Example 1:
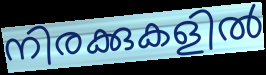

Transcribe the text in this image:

നിരക്കുകളിൽ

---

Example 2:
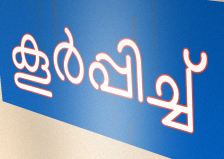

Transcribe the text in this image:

കൂർപ്പിച്ച്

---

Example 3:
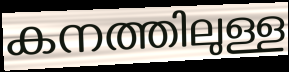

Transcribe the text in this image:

കനത്തിലുള്ള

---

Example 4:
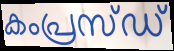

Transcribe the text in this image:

കംപ്രസ്ഡ്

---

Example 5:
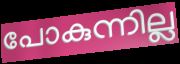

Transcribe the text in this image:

പോകുന്നില്ല